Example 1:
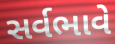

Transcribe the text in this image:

સર્વભાવે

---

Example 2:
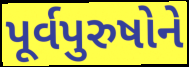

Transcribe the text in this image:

પૂર્વપુરુષોને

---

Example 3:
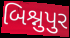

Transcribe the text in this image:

બિશ્નુપુર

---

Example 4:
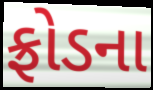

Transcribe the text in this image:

ફ્રોડના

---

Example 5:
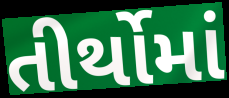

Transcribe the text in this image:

તીર્થોમાં